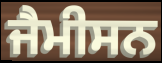
ਜੈਮੀਸਨ